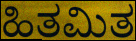
ಹಿತಮಿತ